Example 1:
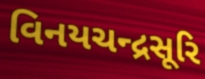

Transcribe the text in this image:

વિનયચન્દ્રસૂરિ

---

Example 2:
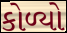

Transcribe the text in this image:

કોળ્યો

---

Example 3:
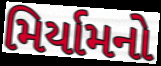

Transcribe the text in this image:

મિર્યામનો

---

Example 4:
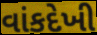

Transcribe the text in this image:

વાંકદેખી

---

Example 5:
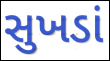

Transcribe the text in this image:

સુખડાં